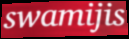
swamijis